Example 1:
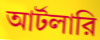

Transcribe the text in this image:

আর্টলারি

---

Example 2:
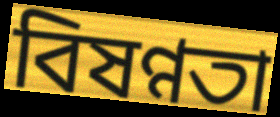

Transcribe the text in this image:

বিষণ্ণতা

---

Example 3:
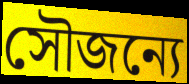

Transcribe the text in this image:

সৌজন্যে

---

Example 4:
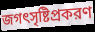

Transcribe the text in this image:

জগৎসৃষ্টিপ্রকরণ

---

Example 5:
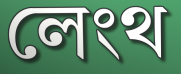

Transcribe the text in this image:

লেংথ